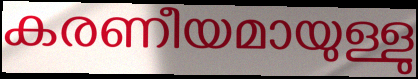
കരണീയമായുള്ളു